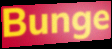
Bunge